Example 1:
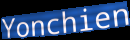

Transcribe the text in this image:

Yonchien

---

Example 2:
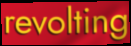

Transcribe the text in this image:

revolting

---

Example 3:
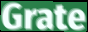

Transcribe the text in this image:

Grate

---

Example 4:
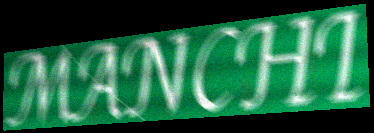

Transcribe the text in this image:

MANCHI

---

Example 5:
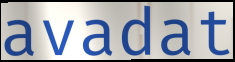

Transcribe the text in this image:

avadat